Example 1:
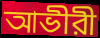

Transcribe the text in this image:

আভীরী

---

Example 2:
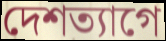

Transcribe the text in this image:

দেশত্যাগে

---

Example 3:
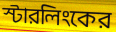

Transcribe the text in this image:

স্টারলিংকের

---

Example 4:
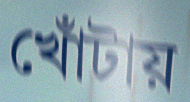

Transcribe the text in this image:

খোঁটায়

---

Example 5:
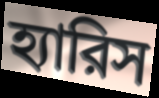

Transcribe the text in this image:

হ্যারিস